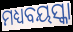
ମଧ୍ୟବୟସ୍କା